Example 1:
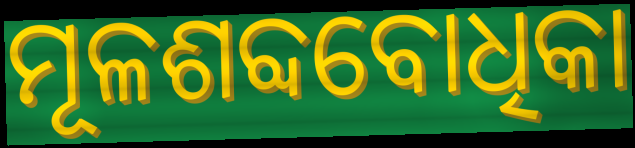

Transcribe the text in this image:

ମୂଳଶବ୍ଦବୋଧିକା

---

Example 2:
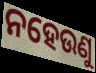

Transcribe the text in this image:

ନହେଉଣୁ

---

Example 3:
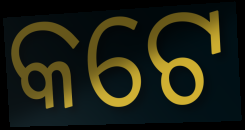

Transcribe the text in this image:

କଟେ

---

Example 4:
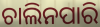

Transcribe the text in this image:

ଚାଲିନପାରି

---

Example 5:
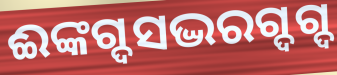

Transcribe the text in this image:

ଈଙ୍କଗ୍ଦସଦ୍ଭରଗ୍ଦଗ୍ଦ